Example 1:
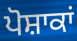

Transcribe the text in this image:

ਪੋਸ਼ਾਕਾਂ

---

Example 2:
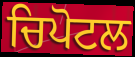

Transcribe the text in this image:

ਚਿਪੋਟਲ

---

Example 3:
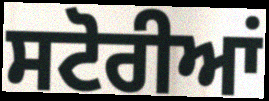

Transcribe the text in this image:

ਸਟੋਰੀਆਂ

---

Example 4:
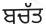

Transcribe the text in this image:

ਬਚੱਤ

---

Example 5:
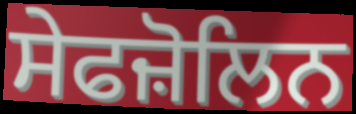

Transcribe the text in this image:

ਸੇਫਜ਼ੋਲਿਨ